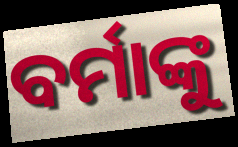
ବର୍ମାଙ୍କୁ